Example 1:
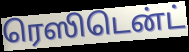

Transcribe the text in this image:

ரெஸிடென்ட்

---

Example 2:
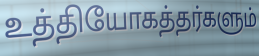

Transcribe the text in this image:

உத்தியோகத்தர்களும்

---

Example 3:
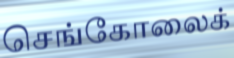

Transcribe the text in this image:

செங்கோலைக்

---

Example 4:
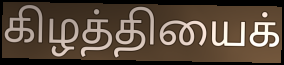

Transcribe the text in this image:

கிழத்தியைக்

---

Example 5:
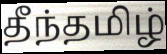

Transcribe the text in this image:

தீந்தமிழ்